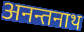
अनन्तनाथ